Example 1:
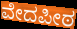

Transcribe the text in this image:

ವೇದಪೀಠ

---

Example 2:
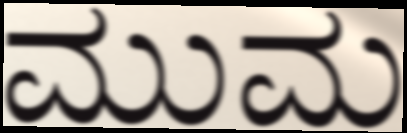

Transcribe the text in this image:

ಮುಮ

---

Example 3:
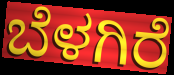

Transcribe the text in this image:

ಬೆಳಗಿರೆ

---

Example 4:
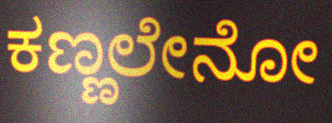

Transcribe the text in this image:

ಕಣ್ಣಲೇನೋ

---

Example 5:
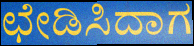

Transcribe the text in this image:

ಛೇಡಿಸಿದಾಗ